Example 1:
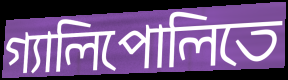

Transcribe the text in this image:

গ্যালিপোলিতে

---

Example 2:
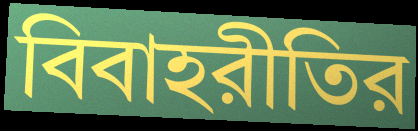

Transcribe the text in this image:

বিবাহরীতির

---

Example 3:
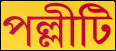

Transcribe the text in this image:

পল্লীটি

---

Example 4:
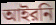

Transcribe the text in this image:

আইরনি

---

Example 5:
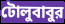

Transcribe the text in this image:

টোলুবাবুর